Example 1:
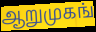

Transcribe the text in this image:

ஆறுமுகங்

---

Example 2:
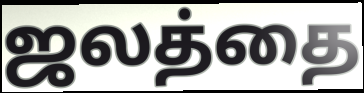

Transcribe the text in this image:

ஜலத்தை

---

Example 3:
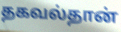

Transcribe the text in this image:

தகவல்தான்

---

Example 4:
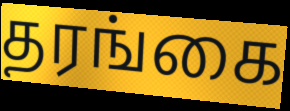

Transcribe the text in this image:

தரங்கை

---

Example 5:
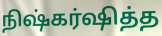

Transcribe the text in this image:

நிஷ்கர்ஷித்த